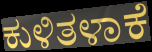
ಕುಳಿತಳಾಕೆ